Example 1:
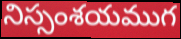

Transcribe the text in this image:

నిస్సంశయముగ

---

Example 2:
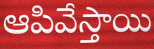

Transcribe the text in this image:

ఆపివేస్తాయి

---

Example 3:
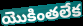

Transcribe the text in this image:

యొకింతలేక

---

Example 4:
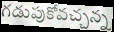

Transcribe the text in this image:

గడుపుకోవచ్చన్న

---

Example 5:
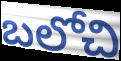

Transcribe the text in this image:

బలోచి